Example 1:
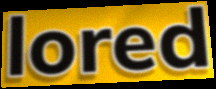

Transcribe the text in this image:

lored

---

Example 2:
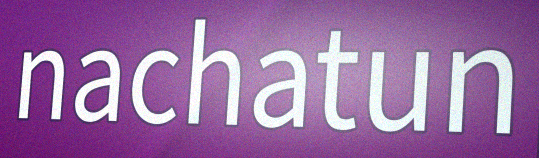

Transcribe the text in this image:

nachatun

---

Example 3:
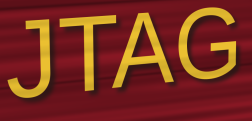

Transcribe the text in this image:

JTAG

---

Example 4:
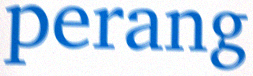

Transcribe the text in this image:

perang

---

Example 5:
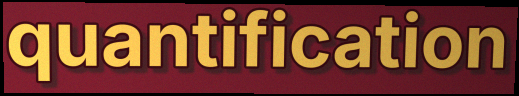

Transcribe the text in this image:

quantification